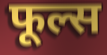
फूल्स